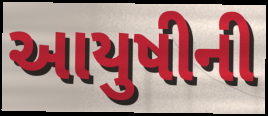
આયુષીની